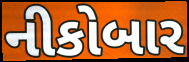
નીકોબાર